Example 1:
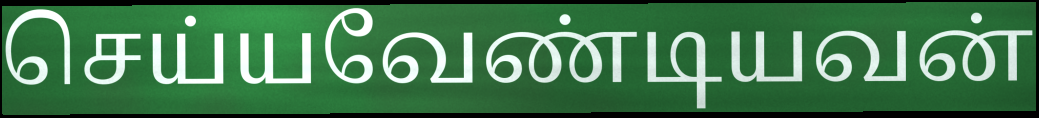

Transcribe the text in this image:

செய்யவேண்டியவன்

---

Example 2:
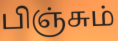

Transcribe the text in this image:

பிஞ்சும்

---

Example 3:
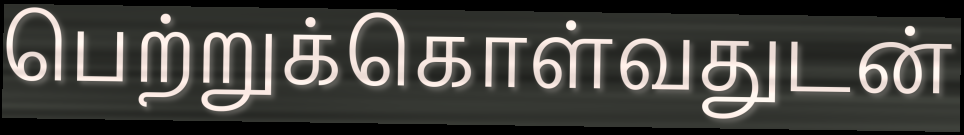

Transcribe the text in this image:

பெற்றுக்கொள்வதுடன்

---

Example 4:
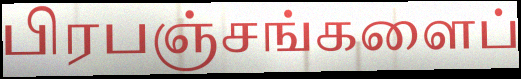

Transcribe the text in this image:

பிரபஞ்சங்களைப்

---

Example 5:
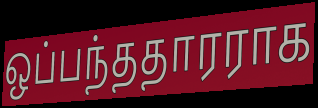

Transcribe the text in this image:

ஒப்பந்ததாரராக